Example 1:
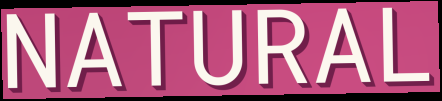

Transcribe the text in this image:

NATURAL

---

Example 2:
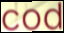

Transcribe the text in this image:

cod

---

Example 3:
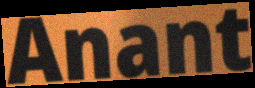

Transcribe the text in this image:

Anant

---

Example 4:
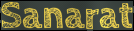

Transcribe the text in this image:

Sanarat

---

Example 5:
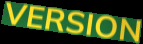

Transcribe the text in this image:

VERSION